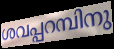
ശവപ്പറമ്പിനു